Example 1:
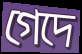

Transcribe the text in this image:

গেদে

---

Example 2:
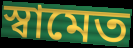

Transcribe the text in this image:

স্বামেত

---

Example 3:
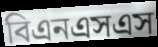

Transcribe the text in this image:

বিএনএসএস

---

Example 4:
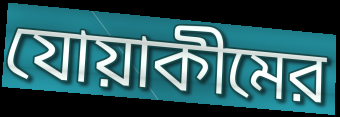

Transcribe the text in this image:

যোয়াকীমের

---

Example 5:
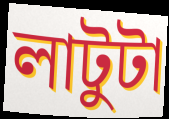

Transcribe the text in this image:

লাটুটা